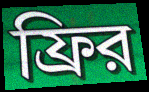
ফ্রির